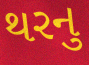
થરનુ